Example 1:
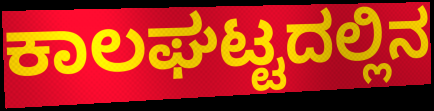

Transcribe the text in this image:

ಕಾಲಘಟ್ಟದಲ್ಲಿನ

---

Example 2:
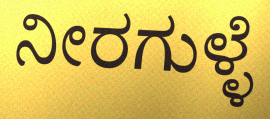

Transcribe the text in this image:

ನೀರಗುಳ್ಳೆ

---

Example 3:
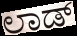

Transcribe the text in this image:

ಲಾಡ್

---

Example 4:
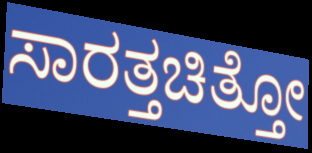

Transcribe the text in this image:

ಸಾರತ್ತಚಿತ್ತೋ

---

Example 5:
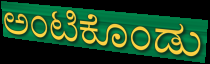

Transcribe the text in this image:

ಅಂಟಿಕೊಂಡು